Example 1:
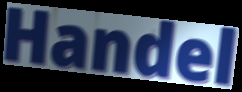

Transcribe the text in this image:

Handel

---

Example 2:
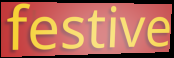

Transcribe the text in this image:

festive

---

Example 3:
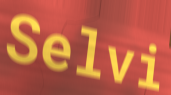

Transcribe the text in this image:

Selvi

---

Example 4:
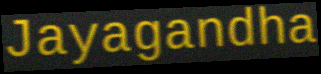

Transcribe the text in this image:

Jayagandha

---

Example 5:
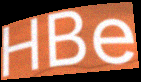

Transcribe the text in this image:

HBe